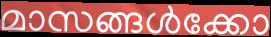
മാസങ്ങൾക്കോ